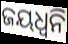
ଜୟଧ୍ଵନି